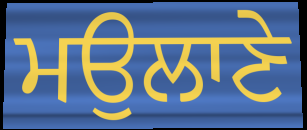
ਮਉਲਾਣੇ